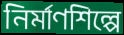
নির্মাণশিল্পে